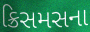
ક્રિસમસના